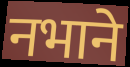
नभाने